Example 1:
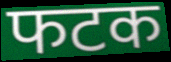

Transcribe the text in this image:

फटक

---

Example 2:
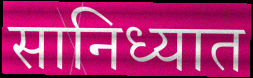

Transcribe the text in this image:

सानिध्यात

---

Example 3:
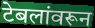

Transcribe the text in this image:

टेबलांवरून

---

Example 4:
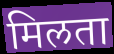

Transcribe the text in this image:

मिलता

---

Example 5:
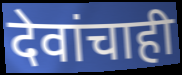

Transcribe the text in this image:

देवांचाही